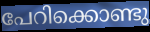
പേറിക്കൊണ്ടു